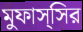
মুফাস্সির